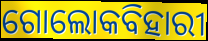
ଗୋଲୋକବିହାରୀ